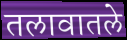
तलावातले